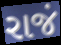
રાજં